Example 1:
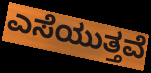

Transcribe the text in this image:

ಎಸೆಯುತ್ತವೆ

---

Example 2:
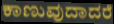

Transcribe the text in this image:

ಕಾಣುವುದಾದರೆ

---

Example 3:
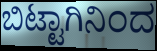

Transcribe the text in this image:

ಬಿಟ್ಟಾಗಿನಿಂದ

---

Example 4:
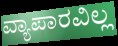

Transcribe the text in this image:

ವ್ಯಾಪಾರವಿಲ್ಲ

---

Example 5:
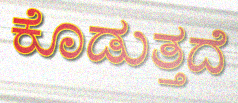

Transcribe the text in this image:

ಕೊಡುತ್ತದೆ